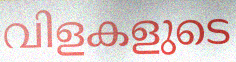
വിളകളുടെ